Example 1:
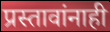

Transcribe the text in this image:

प्रस्तावांनाही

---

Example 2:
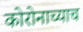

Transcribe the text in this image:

कोरोनाच्याच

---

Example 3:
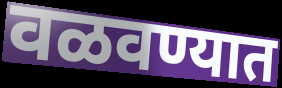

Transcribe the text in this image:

वळवण्यात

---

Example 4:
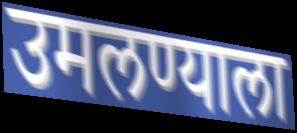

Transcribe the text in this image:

उमलण्याला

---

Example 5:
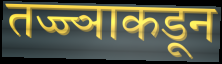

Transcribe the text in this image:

तज्ज्ञाकडून